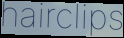
hairclips